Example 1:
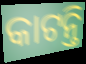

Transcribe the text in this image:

କାଟନ୍ତି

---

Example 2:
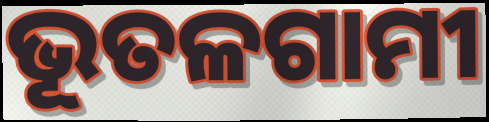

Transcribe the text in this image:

ଭୂତଳଗାମୀ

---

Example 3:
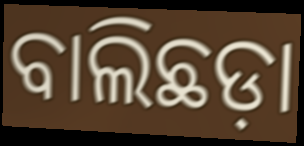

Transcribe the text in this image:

ବାଲିଛଡ଼ା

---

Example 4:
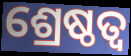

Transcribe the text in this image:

ଶ୍ରେଷ୍ଠତ୍ବ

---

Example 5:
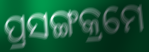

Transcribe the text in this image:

ପ୍ରସଙ୍ଗକ୍ରମେ